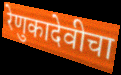
रेणुकादेवीचा